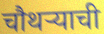
चौथऱ्याची